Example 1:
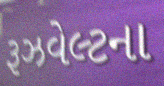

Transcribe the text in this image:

રૂઝવેલ્ટના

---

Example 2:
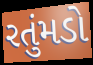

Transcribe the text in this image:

રતુંમડો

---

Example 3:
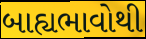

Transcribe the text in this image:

બાહ્યભાવોથી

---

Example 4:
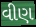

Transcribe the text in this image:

વીણ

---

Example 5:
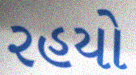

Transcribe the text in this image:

રહયો